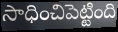
సాధించిపెట్టింది